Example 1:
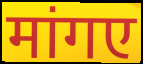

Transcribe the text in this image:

मांगए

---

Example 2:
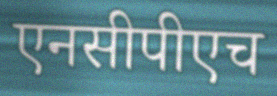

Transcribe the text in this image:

एनसीपीएच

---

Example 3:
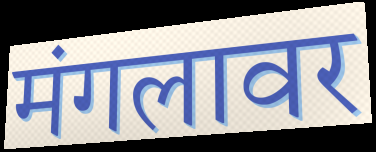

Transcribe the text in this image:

मंगलावर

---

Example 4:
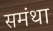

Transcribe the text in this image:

समंथा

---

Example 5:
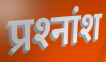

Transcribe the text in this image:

प्रश्‍नांश